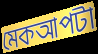
মেকআপটা